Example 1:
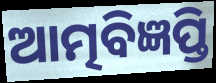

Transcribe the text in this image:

ଆତ୍ମବିଜ୍ଞପ୍ତି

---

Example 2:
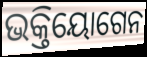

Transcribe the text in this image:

ଭକ୍ତିୟୋଗେନ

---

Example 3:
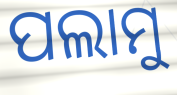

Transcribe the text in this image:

ପଲାମୁ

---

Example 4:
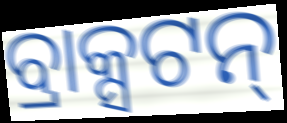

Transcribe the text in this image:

ବ୍ରାକ୍ସଟନ୍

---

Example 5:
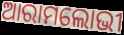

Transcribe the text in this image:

ଆରାମଲୋଭୀ